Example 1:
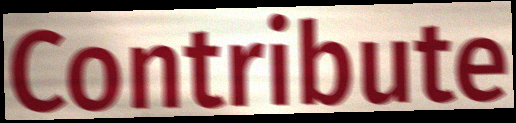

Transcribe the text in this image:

Contribute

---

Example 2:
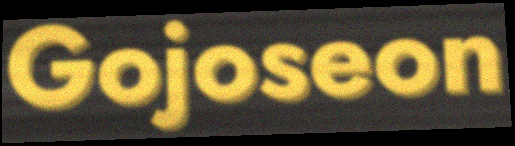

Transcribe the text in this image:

Gojoseon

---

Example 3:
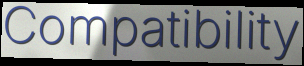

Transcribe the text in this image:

Compatibility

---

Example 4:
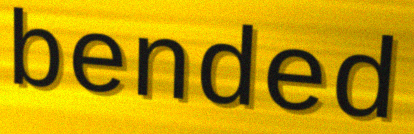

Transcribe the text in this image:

bended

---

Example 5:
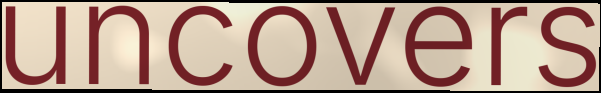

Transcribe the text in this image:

uncovers